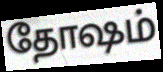
தோஷம்